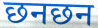
छनछन